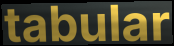
tabular